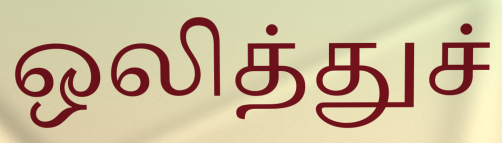
ஒலித்துச்